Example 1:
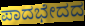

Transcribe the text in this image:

ಪಾದಭೇದದ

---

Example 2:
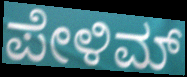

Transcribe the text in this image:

ಪೇಳಿಮ್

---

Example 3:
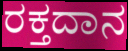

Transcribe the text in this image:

ರಕ್ತದಾನ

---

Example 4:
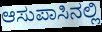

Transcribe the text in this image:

ಆಸುಪಾಸಿನಲ್ಲಿ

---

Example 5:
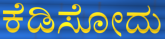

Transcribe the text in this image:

ಕೆಡಿಸೋದು